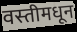
वस्तीमधून